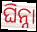
ଘିନ୍ନା